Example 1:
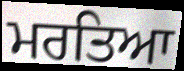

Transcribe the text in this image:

ਮਰਤਿਆ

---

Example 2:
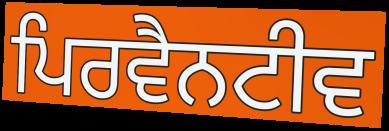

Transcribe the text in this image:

ਪਿਰਵੈਨਟੀਵ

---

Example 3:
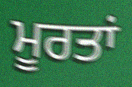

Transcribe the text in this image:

ਮੂਰਤਾਂ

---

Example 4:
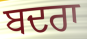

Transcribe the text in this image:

ਬਦਰਾ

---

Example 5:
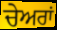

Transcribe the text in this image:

ਚੇਅਰਾਂ